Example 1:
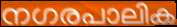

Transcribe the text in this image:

നഗരപാലിക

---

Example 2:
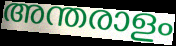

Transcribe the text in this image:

അന്തരാളം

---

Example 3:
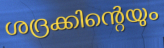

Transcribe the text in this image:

ശദ്രക്കിന്റെയും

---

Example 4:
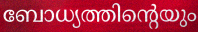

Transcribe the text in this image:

ബോധ്യത്തിന്റെയും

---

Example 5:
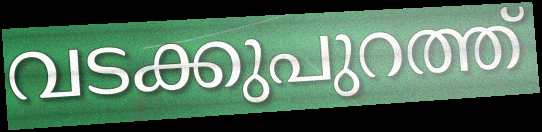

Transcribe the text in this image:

വടക്കുപുറത്ത്